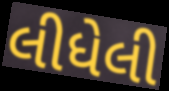
લીધેલી